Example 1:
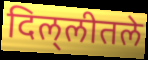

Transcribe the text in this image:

दिल्लीतले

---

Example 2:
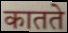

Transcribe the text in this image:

कातते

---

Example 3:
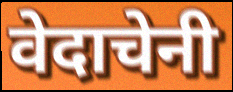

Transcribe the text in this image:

वेदाचेनी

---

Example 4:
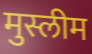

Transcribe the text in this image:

मुस्लीम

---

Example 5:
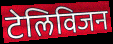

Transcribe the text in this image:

टेलिविजन